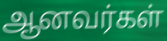
ஆனவர்கள்